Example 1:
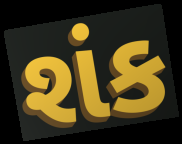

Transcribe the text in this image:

શંક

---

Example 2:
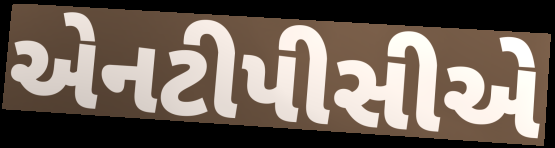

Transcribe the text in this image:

એનટીપીસીએ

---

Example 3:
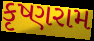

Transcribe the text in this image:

કૃષ્ણરામ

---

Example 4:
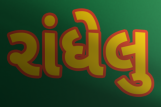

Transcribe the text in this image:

રાંધેલુ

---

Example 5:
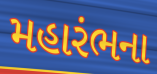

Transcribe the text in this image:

મહારંભના